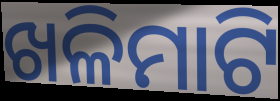
ଖଳିମାଟି